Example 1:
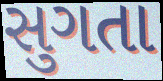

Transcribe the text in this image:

સુગતા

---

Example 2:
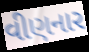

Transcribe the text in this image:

વીણનાર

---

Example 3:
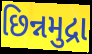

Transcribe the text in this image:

છિન્નમુદ્રા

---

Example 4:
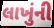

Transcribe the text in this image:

લાખુંની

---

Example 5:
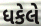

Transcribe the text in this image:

ધકેલે